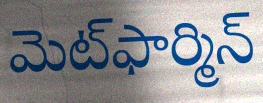
మెట్‌ఫార్మిన్